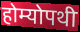
होम्योपथी